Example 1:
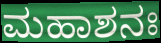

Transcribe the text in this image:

ಮಹಾಶನಃ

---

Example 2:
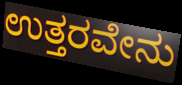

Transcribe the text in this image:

ಉತ್ತರವೇನು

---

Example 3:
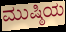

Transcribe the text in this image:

ಮುಷ್ಠಿಯ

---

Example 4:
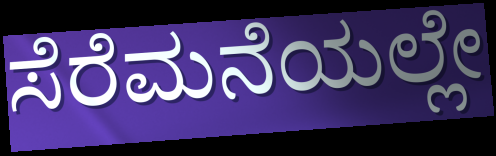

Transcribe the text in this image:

ಸೆರೆಮನೆಯಲ್ಲೇ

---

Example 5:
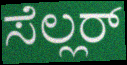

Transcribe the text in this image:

ಸೆಲ್ಲರ್